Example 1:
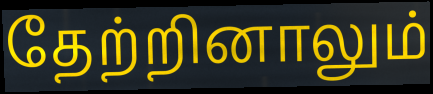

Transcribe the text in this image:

தேற்றினாலும்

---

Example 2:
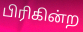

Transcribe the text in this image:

பிரிகின்ற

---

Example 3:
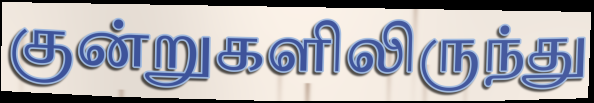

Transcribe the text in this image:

குன்றுகளிலிருந்து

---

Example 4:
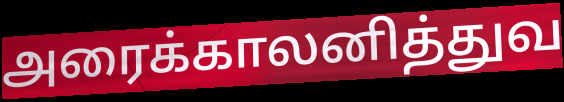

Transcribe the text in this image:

அரைக்காலனித்துவ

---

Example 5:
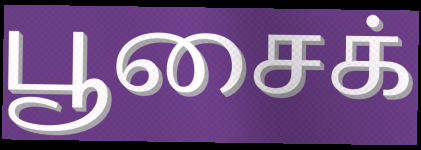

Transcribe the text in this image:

பூசைக்